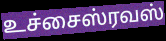
உச்சைஸ்ரவஸ்